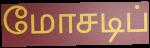
மோசடிப்